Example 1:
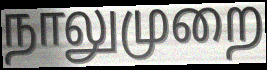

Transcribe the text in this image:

நாலுமுறை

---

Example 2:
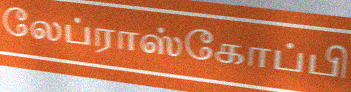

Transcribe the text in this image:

லேப்ராஸ்கோப்பி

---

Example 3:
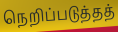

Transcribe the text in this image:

நெறிப்படுத்தத்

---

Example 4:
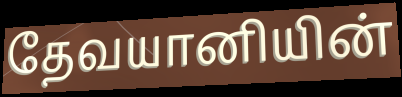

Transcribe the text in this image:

தேவயானியின்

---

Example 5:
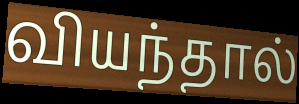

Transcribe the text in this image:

வியந்தால்